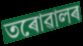
তৰোৱালৰ